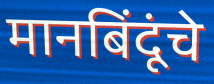
मानबिंदूंचे